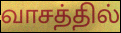
வாசத்தில்